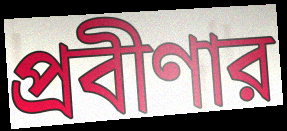
প্রবীণার